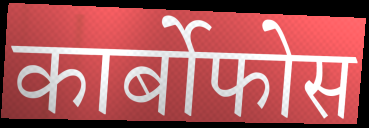
कार्बोफोस